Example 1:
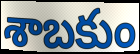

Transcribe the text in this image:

శాబకుం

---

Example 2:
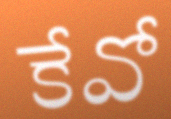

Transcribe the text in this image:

కేవో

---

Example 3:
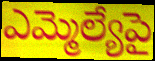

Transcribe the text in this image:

ఎమ్మెల్యేపై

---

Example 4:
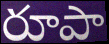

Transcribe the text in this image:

రూపా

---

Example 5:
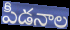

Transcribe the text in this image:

పీడనాల